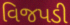
વિજપડી